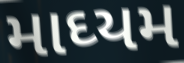
માઘ્યમ